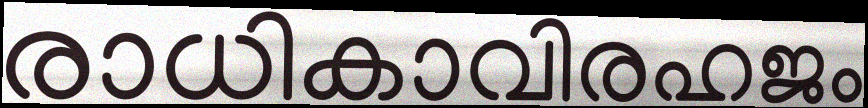
രാധികാവിരഹജം